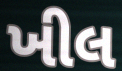
ખીલ